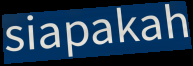
siapakah